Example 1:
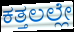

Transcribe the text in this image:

ಕತ್ತಲಲ್ಲೇ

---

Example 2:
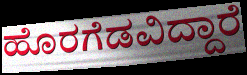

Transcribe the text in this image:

ಹೊರಗೆಡವಿದ್ದಾರೆ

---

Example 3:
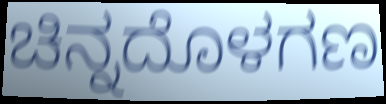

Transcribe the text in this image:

ಚಿನ್ನದೊಳಗಣ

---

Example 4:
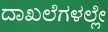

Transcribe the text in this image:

ದಾಖಲೆಗಳಲ್ಲೇ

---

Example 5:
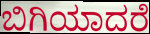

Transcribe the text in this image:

ಬಿಗಿಯಾದರೆ